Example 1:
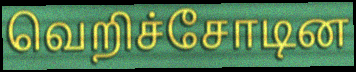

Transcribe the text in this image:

வெறிச்சோடின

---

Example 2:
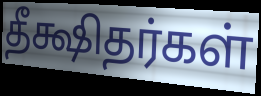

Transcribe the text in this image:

தீக்ஷிதர்கள்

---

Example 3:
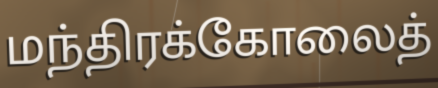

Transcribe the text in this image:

மந்திரக்கோலைத்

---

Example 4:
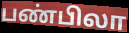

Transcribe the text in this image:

பண்பிலா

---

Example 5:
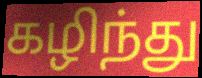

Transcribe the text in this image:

கழிந்து